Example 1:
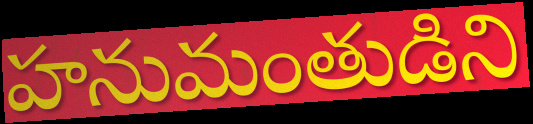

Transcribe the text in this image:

హనుమంతుడిని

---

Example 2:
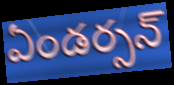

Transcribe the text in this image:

ఏండర్సన్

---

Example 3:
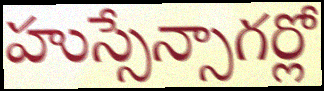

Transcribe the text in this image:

హుస్సేన్సాగర్లో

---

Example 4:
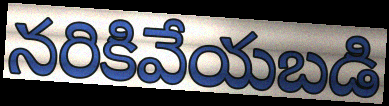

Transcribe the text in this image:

నరికివేయబడి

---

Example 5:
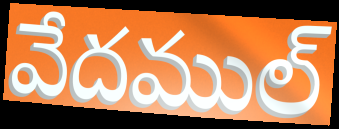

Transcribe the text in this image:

వేదముల్